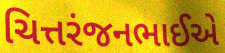
ચિત્તરંજનભાઈએ